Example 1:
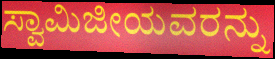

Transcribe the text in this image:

ಸ್ವಾಮಿಜೀಯವರನ್ನು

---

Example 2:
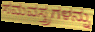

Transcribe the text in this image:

ಸಮವಸ್ತ್ರಗಳನ್ನು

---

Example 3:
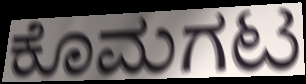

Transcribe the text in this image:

ಕೊಮಗಟ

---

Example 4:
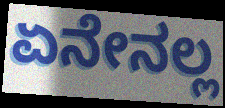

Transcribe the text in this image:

ಏನೇನಲ್ಲ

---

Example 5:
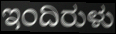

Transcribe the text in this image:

ಇಂದಿರುಳು